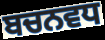
ਬਚਨਵਧ